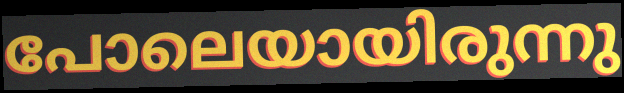
പോലെയായിരുന്നു